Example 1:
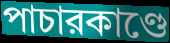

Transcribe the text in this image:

পাচারকাণ্ডে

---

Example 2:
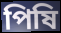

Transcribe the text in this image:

পিষি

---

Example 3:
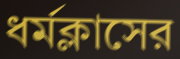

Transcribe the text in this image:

ধর্মক্লাসের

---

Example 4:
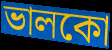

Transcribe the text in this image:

ভালকো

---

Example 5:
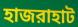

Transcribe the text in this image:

হাজরাহাট